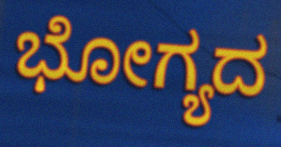
ಭೋಗ್ಯದ